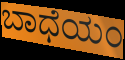
ಬಾಧೆಯಂ